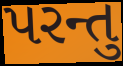
પરન્તુ